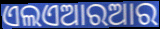
ଏଲଏଆରଆର